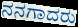
ನನಗಾದರು